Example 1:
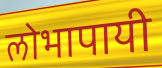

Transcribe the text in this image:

लोभापायी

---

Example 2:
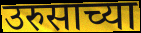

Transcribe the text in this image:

उरुसाच्या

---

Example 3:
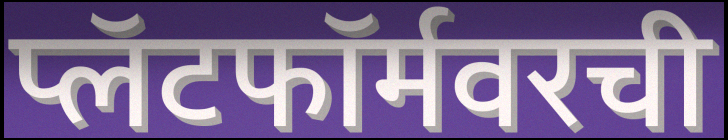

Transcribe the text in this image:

प्लॅटफॉर्मवरची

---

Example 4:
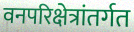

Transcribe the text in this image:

वनपरिक्षेत्रांतर्गत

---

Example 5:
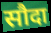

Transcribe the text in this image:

सौदा